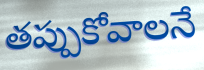
తప్పుకోవాలనే